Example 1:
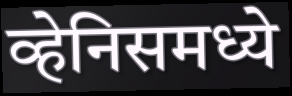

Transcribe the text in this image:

व्हेनिसमध्ये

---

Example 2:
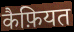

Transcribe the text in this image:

कैफ़ियत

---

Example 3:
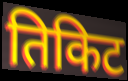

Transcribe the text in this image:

तिकिट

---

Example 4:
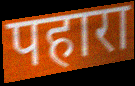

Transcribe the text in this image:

पहारा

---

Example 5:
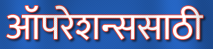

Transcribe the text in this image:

ऑपरेशन्ससाठी